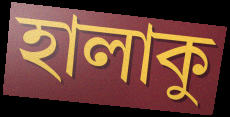
হালাকু